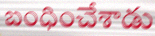
బంధించేశాడు